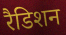
रैडिशन